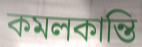
কমলকান্তি